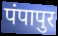
पंपापुर